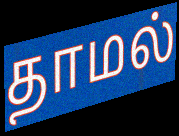
தாமல்